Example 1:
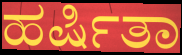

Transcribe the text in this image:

ಹರ್ಷಿತಾ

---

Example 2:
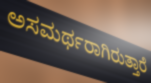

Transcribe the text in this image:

ಅಸಮರ್ಥರಾಗಿರುತ್ತಾರೆ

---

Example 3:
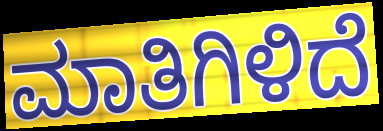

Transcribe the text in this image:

ಮಾತಿಗಿಳಿದೆ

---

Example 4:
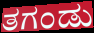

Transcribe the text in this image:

ತಗಂಡು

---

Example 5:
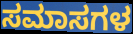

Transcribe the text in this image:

ಸಮಾಸಗಳ